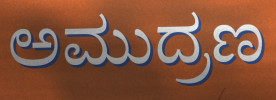
ಅಮುದ್ರಣ